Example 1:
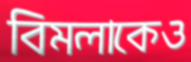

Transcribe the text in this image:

বিমলাকেও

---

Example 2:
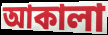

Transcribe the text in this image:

আকালা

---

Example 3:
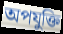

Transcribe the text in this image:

অপযুক্তি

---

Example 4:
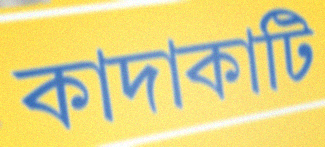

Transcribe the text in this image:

কাদাকাটি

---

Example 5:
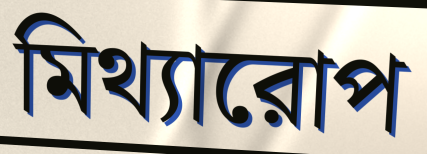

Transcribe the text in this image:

মিথ্যারোপ